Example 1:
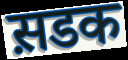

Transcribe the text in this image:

स़डक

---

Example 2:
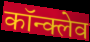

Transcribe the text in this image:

कॉन्क्लेव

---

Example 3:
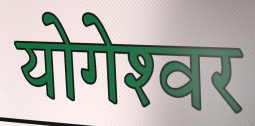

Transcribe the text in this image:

योगेश्‍वर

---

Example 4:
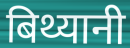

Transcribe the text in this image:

बिथ्यानी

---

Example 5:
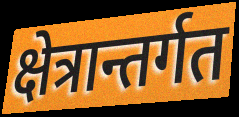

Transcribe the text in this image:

क्षेत्रान्तर्गत